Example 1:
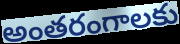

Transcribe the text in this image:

అంతరంగాలకు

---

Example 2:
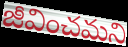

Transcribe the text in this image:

జీవించమని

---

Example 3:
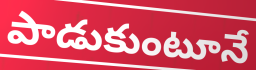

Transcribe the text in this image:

పాడుకుంటూనే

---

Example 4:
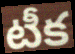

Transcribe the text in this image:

టీక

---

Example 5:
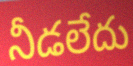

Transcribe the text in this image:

నీడలేదు